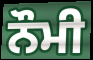
ਨੌਮੀ